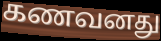
கணவனது